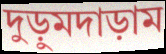
দুড়ুমদাড়াম